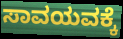
ಸಾವಯವಕ್ಕೆ